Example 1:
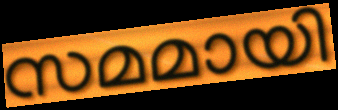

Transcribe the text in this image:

സമമായി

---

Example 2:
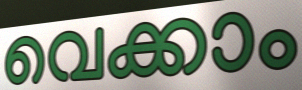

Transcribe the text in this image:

വെക്കാം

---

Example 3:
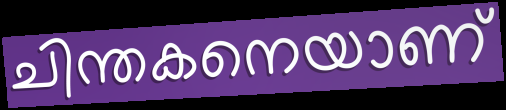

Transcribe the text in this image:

ചിന്തകനെയാണ്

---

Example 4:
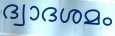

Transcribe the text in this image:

ദ്വാദശമം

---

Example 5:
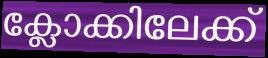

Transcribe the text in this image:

ക്ലോക്കിലേക്ക്